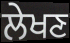
ਲੇਖਣ